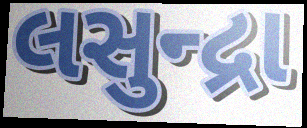
લસુન્દ્રા